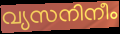
വ്യസനിനീം